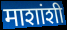
माशांशी